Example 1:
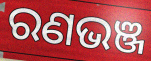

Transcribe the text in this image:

ରଣଭଞ୍ଜ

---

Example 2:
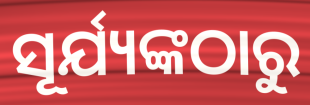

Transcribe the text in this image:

ସୂର୍ଯ୍ୟଙ୍କଠାରୁ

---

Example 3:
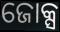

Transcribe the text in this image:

ଜୋକ୍ସ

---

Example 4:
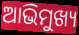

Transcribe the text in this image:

ଆଭିମୁଖ୍ୟ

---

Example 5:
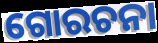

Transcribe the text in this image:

ଗୋରଚନା